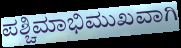
ಪಶ್ಚಿಮಾಭಿಮುಖವಾಗಿ